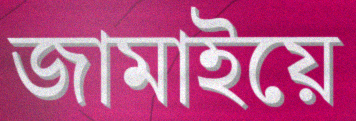
জামাইয়ে